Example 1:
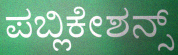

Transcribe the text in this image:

ಪಬ್ಲಿಕೇಶನ್ಸ್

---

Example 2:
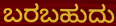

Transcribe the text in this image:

ಬರಬಹುದು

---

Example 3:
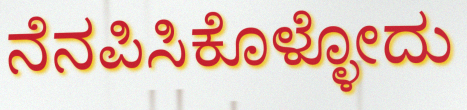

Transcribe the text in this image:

ನೆನಪಿಸಿಕೊಳ್ಳೋದು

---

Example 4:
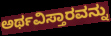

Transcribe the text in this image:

ಅರ್ಥವಿಸ್ತಾರವನ್ನು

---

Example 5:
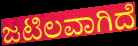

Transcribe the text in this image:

ಜಟಿಲವಾಗಿದೆ